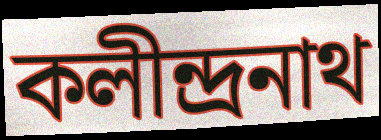
কলীন্দ্রনাথ